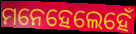
ମନେହେଲେହେଁ